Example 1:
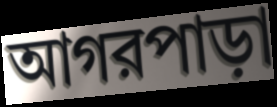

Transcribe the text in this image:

আগরপাড়া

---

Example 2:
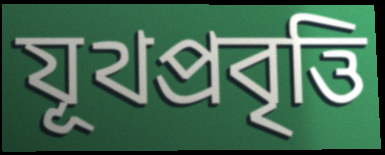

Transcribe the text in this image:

যূথপ্রবৃত্তি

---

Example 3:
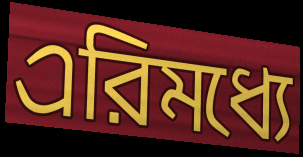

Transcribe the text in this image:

এরিমধ্যে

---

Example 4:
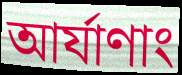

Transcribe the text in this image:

আর্যাণাং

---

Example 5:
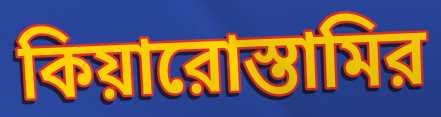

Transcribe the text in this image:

কিয়ারোস্তামির